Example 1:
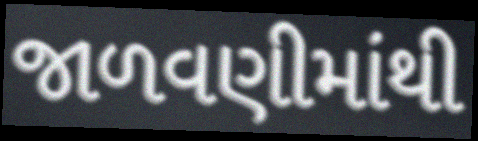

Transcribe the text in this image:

જાળવણીમાંથી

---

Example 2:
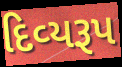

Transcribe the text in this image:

દિવ્‍યરૂપ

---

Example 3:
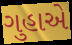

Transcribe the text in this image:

ગુહાએ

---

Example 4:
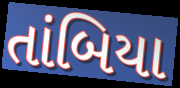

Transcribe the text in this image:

તાંબિયા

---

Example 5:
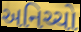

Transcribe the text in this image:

અનિચ્ચો